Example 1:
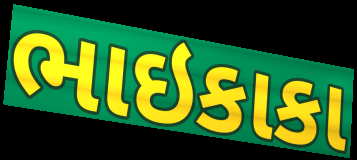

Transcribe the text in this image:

ભાઇકાકા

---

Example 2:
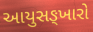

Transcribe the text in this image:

આયુસઙ્ખારો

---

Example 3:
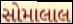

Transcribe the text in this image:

સોમાલાલ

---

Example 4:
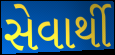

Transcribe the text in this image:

સેવાર્થી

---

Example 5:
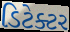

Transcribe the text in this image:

ડિટેક્ટર